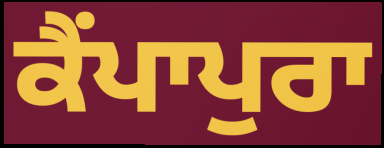
ਕੈਂਪਾਪੁਰਾ